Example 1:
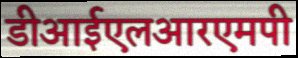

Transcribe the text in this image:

डीआईएलआरएमपी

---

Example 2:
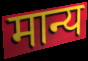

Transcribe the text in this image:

मान्य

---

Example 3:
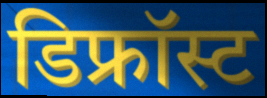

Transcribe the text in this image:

डिफ्रॉस्ट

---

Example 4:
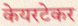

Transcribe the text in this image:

केयरटेकर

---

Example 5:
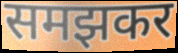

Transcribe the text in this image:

समझकर